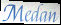
Medan